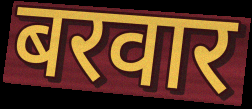
बरवार